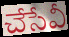
చేసేవీ